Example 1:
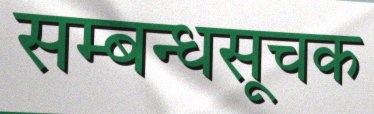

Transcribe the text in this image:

सम्बन्धसूचक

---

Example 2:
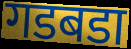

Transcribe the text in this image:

गडबडा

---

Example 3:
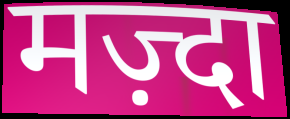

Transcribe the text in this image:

मज़्दा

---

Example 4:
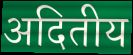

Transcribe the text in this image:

अदितीय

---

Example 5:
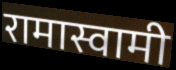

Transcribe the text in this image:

रामास्वामी